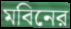
মবিনের